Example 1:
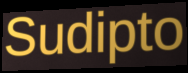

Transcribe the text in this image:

Sudipto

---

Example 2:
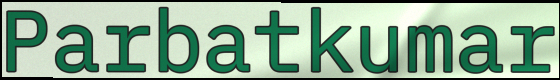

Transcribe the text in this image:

Parbatkumar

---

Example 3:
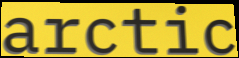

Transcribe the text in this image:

arctic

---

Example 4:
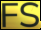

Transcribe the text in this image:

FS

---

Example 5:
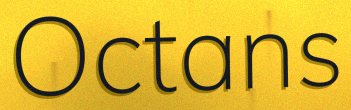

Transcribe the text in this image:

Octans